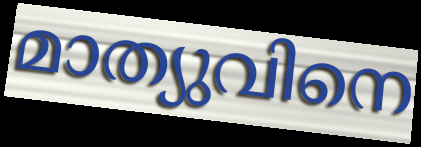
മാത്യുവിനെ